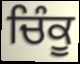
ਚਿੰਕੂ